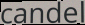
candel